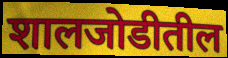
शालजोडीतील